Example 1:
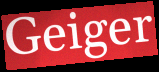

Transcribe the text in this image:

Geiger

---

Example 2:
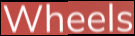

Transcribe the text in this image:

Wheels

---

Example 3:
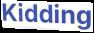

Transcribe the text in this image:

Kidding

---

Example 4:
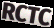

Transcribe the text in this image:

RCTC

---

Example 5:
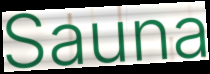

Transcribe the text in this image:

Sauna